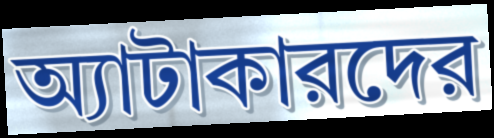
অ্যাটাকারদের